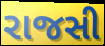
રાજસી